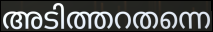
അടിത്തറതന്നെ